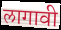
लागावी